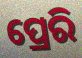
ପ୍ରେରି